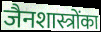
जैनशास्त्रोंका